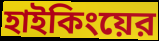
হাইকিংয়ের